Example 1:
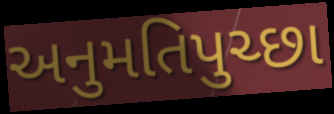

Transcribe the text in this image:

અનુમતિપુચ્છા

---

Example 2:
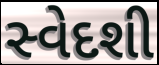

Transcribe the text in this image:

સ્વેદશી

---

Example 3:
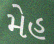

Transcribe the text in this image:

મેહ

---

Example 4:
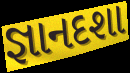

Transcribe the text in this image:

જ્ઞાનદશા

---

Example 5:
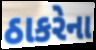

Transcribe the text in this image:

ઠાકરેના